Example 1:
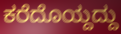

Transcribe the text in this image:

ಕರೆದೊಯ್ದದ್ದು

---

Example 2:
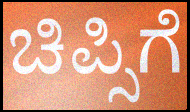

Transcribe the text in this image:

ಚಿಪ್ಸಿಗೆ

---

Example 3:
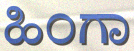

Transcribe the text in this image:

ಹಿಂಗಾ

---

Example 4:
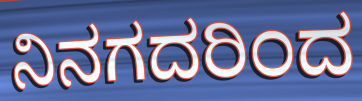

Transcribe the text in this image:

ನಿನಗದರಿಂದ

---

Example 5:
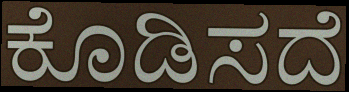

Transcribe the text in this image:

ಕೊಡಿಸದೆ